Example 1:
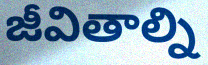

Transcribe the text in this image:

జీవితాల్ని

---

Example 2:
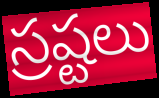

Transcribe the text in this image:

స్రష్టలు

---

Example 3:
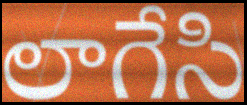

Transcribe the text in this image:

లాగేసి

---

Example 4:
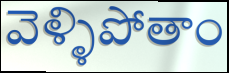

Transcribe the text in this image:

వెళ్ళిపోతాం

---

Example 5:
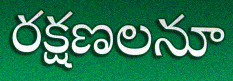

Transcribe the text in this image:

రక్షణలనూ